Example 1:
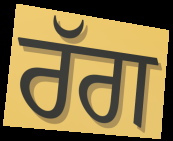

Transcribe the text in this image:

ਰੱਗ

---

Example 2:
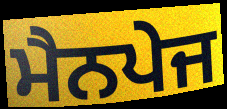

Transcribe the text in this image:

ਮੈਨਪੇਜ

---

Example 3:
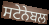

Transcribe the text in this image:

ਸਟੇਨੇਬਲ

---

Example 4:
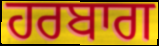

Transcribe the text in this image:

ਹਰਬਾਗ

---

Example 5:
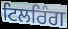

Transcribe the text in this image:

ਟਿਲਰਿੰਗ